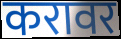
करावर